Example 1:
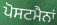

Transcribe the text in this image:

ਪੋਸਟਮੈਨਾਂ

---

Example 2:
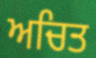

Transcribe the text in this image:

ਅਚਿਤ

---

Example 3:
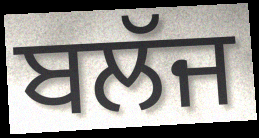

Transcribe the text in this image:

ਬਲੱਜ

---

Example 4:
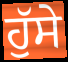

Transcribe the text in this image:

ਹੁੱਸੇ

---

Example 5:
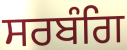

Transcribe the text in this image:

ਸਰਬੰਗਿ